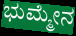
ಭುಮ್ಮೇನ